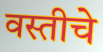
वस्तीचे